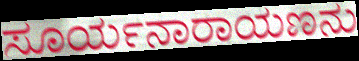
ಸೂರ್ಯನಾರಾಯಣನು